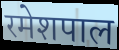
रमेशपाल